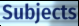
Subjects